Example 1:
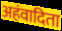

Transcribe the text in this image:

अहंवादिता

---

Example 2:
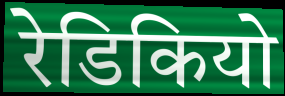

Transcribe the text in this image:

रेडिकियो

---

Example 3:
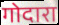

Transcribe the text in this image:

गोदारा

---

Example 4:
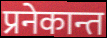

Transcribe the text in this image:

प्रनेकान्त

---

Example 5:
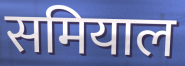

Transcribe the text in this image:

समियाल